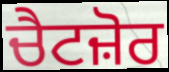
ਚੈਟਜ਼ੋਰ